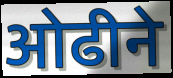
ओढीने